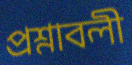
প্রশ্নাবলী